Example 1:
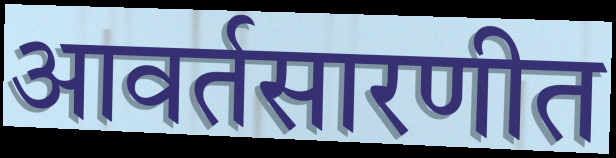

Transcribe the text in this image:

आवर्तसारणीत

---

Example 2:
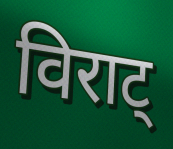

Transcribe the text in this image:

विराट्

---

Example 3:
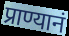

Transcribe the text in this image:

प्राण्यानं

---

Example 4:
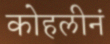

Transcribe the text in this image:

कोहलीनं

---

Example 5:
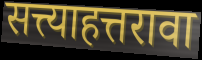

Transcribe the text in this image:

सत्त्याहत्तरावा